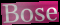
Bose